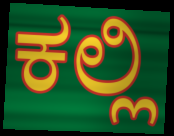
ಕಲ್ಲಿ